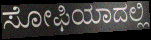
ಸೋಫಿಯಾದಲ್ಲಿ